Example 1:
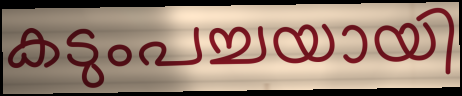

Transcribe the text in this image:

കടുംപച്ചയായി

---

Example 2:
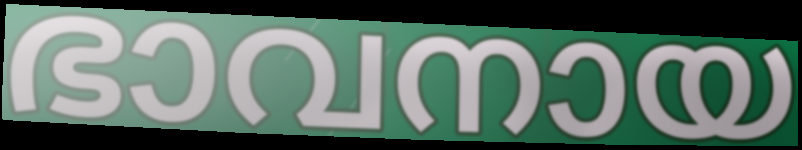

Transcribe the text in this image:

ഭാവനായ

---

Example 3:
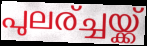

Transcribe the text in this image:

പുലര്ച്ചയ്ക്ക്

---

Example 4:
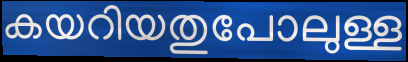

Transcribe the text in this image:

കയറിയതുപോലുള്ള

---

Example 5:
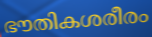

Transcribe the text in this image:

ഭൗതികശരീരം